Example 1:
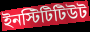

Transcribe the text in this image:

ইনস্টিটিটিউট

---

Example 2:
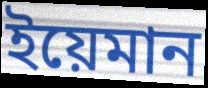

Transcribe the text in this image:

ইয়েমান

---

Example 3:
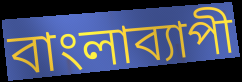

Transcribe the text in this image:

বাংলাব্যাপী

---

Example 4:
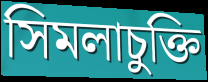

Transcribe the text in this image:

সিমলাচুক্তি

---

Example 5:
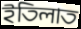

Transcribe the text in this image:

ইতিলাত